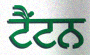
ਟੈਂਟਨ